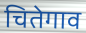
चितेगाव